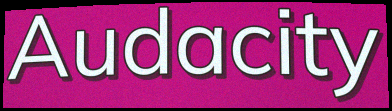
Audacity